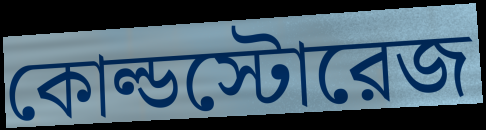
কোল্ডস্টোরেজ